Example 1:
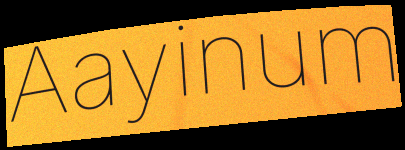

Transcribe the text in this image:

Aayinum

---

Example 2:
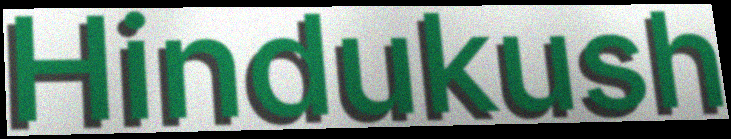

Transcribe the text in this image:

Hindukush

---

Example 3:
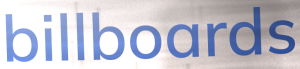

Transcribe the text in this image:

billboards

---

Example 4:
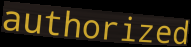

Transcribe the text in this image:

authorized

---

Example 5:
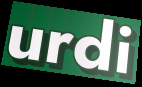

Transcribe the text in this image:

urdi